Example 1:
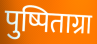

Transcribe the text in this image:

पुष्पिताग्रा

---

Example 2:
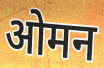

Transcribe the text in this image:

ओमन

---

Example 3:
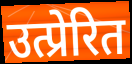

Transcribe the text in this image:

उत्प्रेरित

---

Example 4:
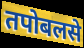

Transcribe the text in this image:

तपोबलसे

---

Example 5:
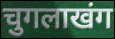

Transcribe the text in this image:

चुगलाखंग